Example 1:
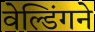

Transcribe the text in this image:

वेल्डिंगने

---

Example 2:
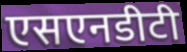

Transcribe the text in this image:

एसएनडीटी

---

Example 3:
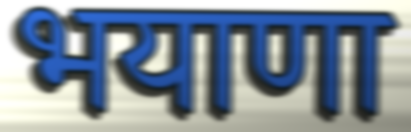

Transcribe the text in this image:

भयाणा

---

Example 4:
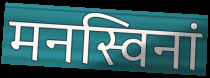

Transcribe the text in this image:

मनस्विनां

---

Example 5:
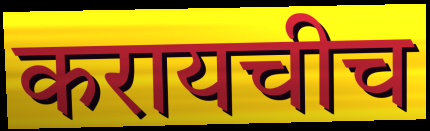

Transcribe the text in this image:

करायचीच